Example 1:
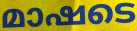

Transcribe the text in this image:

മാഷടെ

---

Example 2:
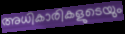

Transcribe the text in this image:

അധികാരികളുടെയും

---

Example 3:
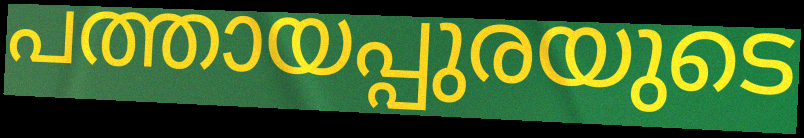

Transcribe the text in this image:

പത്തായപ്പുരയുടെ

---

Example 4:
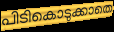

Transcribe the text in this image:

പിടികൊടുക്കാതെ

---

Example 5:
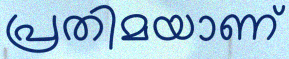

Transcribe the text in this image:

പ്രതിമയാണ്